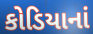
કોડિયાનાં